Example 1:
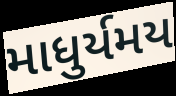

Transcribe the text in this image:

માધુર્યમય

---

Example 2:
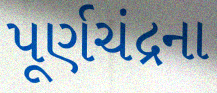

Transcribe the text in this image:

પૂર્ણચંદ્રના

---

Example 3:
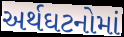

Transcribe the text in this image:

અર્થઘટનોમાં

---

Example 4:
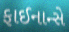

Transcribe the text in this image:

ફાઈનાન્સે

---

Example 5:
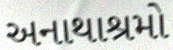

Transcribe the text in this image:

અનાથાશ્રમો